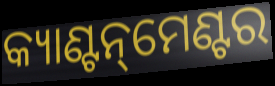
କ୍ୟାଣ୍ଟନ୍‌ମେଣ୍ଟର